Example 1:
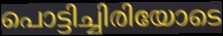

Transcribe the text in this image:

പൊട്ടിച്ചിരിയോടെ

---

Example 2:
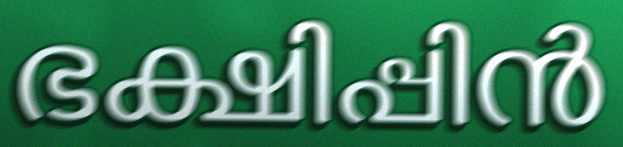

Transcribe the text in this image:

ഭക്ഷിപ്പിൻ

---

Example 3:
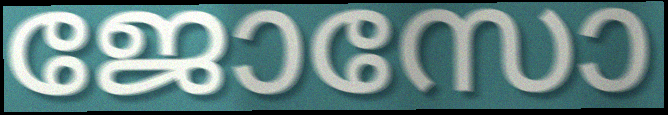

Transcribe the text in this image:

ജോസോ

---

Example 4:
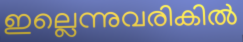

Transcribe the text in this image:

ഇല്ലെന്നുവരികിൽ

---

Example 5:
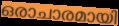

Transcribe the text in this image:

ഒരാചാരമായി